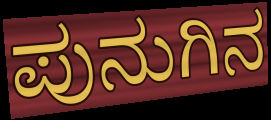
ಪುನುಗಿನ